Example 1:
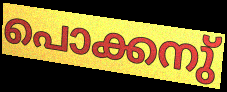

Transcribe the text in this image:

പൊക്കനു്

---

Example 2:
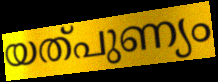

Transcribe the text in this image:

യത്പുണ്യം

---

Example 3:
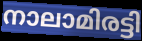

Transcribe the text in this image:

നാലാമിരട്ടി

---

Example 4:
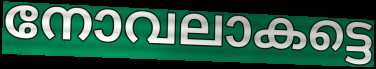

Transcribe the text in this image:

നോവലാകട്ടെ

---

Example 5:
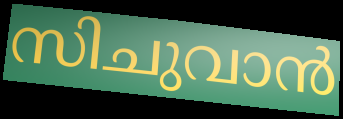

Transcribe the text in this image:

സിചുവാൻ